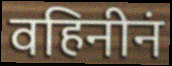
वहिनीनं